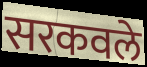
सरकवले